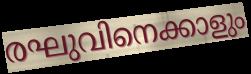
രഘുവിനെക്കാളും